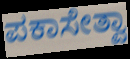
ಪಕಾಸೇತ್ವಾ